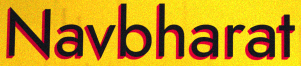
Navbharat